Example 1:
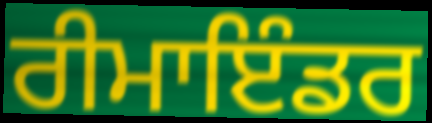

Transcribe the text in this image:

ਰੀਮਾਇੰਡਰ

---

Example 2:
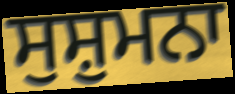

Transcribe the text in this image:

ਸੁਸ਼ੁਮਨਾ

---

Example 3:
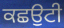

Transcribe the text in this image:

ਕਛਉਟੀ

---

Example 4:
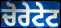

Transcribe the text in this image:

ਚੋਰੇਟੇਟ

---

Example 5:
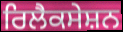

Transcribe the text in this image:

ਰਿਲੈਕਸੇਸ਼ਨ